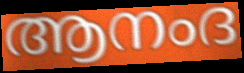
ആനംദ